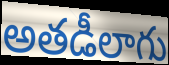
అతడీలాగు